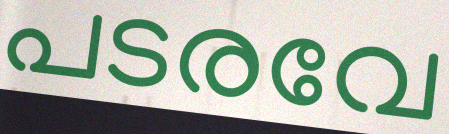
പടരവേ